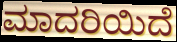
ಮಾದರಿಯಿದೆ